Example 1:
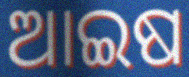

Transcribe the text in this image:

ଆଇଷ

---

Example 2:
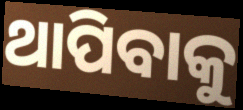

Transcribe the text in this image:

ଥାପିବାକୁ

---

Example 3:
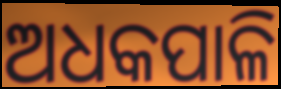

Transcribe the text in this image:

ଅଧକପାଳି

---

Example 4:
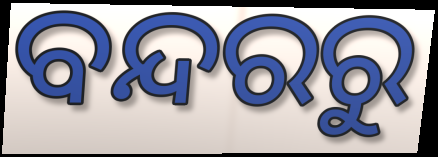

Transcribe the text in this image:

ବନ୍ଦରରୁ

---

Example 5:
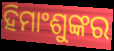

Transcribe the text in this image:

ହିମାଂଶୁଙ୍କର